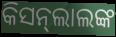
କିସନ୍‌ଲାଲଙ୍କ